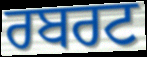
ਰਬਰਟ